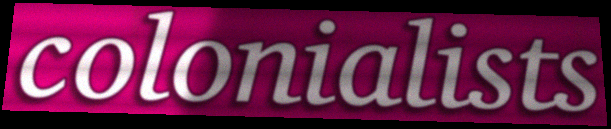
colonialists